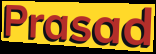
Prasad